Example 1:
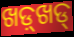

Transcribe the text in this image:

ଖଡ଼୍‌ଖଡ୍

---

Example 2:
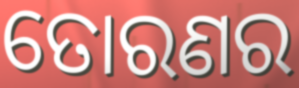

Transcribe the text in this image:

ତୋରଣର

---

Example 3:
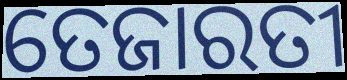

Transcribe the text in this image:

ତେଜାରତୀ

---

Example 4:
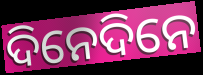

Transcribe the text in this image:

ଦିନେଦିନେ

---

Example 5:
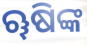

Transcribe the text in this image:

ୠଷିଙ୍କ